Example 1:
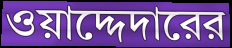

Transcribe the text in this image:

ওয়াদ্দেদারের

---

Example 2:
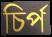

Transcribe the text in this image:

চির্প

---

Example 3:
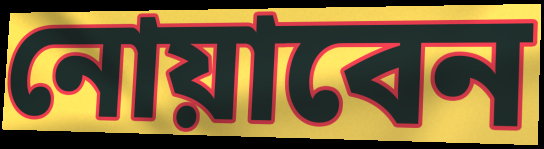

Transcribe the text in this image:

নোয়াবেন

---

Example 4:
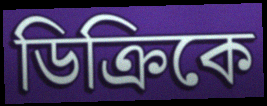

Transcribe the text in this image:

ডিক্রিকে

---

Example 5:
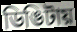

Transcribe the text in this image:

ডিঙিটায়